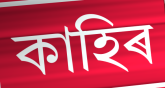
কাহিৰ